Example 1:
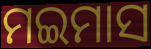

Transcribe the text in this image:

ମଇମାସ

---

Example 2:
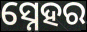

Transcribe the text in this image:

ସ୍ନେହର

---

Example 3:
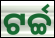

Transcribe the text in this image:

ଟର୍ଚ୍ଚ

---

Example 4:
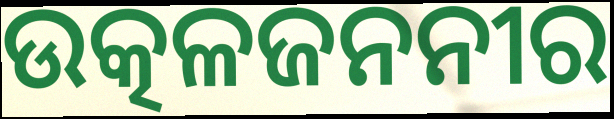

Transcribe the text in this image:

ଉତ୍କଳଜନନୀର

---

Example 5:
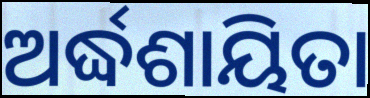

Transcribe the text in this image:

ଅର୍ଦ୍ଧଶାୟିତା